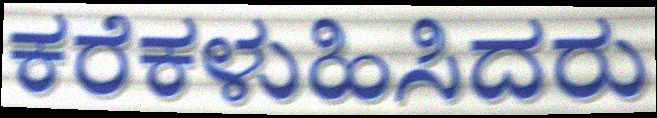
ಕರೆಕಳುಹಿಸಿದರು